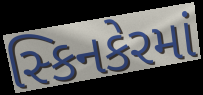
સ્કિનકેરમાં